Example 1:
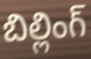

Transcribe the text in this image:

బిల్లింగ్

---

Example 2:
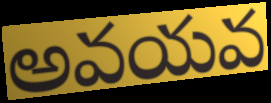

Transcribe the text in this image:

అవయవ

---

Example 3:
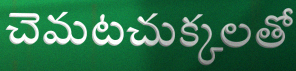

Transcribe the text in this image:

చెమటచుక్కలతో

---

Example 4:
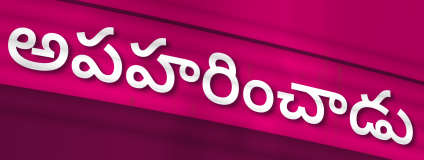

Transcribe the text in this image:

అపహరించాడు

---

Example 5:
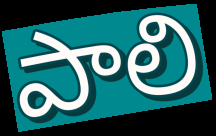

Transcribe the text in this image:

పాలి